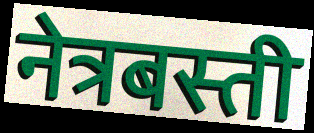
नेत्रबस्ती